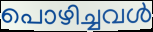
പൊഴിച്ചവൾ